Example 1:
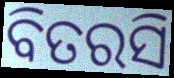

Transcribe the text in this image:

ବିତରସି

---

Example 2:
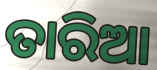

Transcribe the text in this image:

ତାରିଆ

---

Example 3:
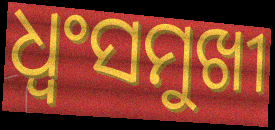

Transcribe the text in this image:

ଧ୍ୱଂସମୁଖୀ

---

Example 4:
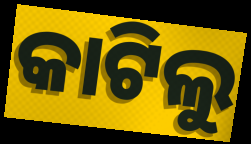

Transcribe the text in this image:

କାଟିଲୁ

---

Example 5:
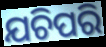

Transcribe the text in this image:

ଯଚିପରି